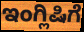
ಇಂಗ್ಲಿಷಿಗೆ